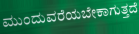
ಮುಂದುವರೆಯಬೇಕಾಗುತ್ತದೆ